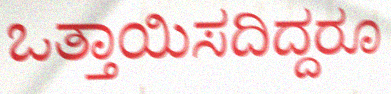
ಒತ್ತಾಯಿಸದಿದ್ದರೂ